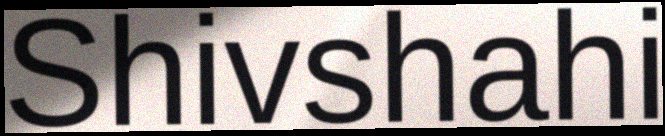
Shivshahi